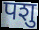
पशु